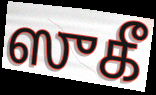
ஸுகீ